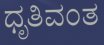
ಧೃತಿವಂತ